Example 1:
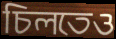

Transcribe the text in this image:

চিলতেও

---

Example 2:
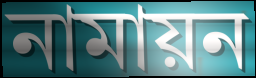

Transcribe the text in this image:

নামায়ন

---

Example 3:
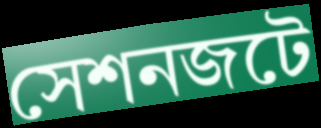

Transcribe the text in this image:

সেশনজটে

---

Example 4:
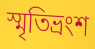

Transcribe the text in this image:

স্মৃতিভ্রংশ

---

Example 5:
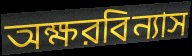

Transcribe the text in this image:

অক্ষরবিন্যাস